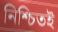
নিশ্চিতই